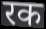
रक